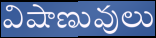
విషాణువులు